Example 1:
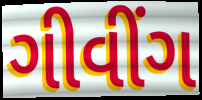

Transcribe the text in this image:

ગીવીંગ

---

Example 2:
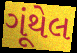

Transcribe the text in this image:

ગૂંથેલ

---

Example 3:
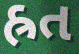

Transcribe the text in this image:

હ્રત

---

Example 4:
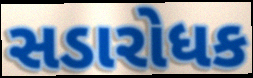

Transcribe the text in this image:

સડારોધક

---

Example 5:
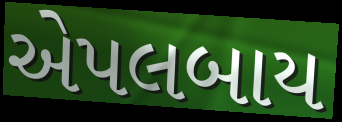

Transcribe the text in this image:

એપલબાય